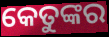
କେତୁଙ୍କର